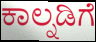
ಕಾಲ್ನಡಿಗೆ